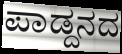
ಪಾಡ್ದನದ